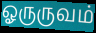
ஓருருவம்